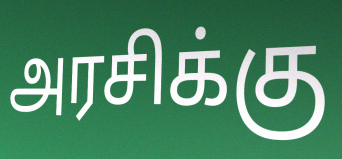
அரசிக்கு